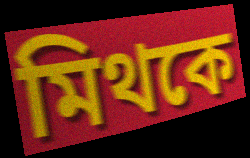
মিথকে